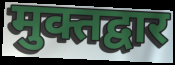
मुक्तद्वार